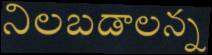
నిలబడాలన్న